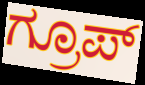
ಗ್ರೂಪ್